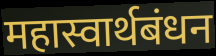
महास्वार्थबंधन